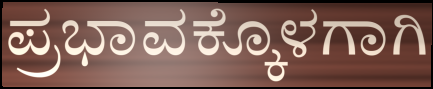
ಪ್ರಭಾವಕ್ಕೊಳಗಾಗಿ